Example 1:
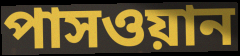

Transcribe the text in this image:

পাসওয়ান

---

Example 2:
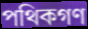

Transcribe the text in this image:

পথিকগণ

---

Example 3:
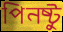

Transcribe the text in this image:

পিনষ্টু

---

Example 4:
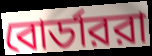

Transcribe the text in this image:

বোর্ডাররা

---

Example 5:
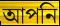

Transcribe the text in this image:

আপনি